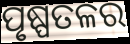
ପୃଷ୍ପତଳର